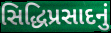
સિદ્ધિપ્રસાદનું